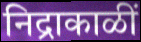
निद्राकाळीं